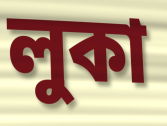
লুকা